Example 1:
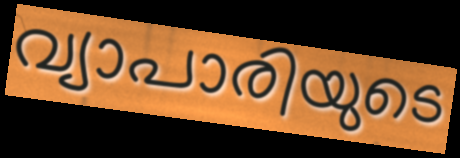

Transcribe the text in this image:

വ്യാപാരിയുടെ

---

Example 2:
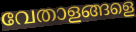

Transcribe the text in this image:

വേതാളങ്ങളെ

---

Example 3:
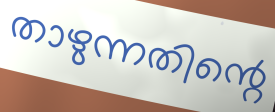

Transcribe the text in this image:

താഴുന്നതിന്റെ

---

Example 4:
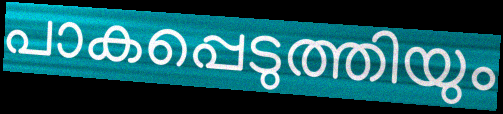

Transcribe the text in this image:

പാകപ്പെടുത്തിയും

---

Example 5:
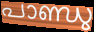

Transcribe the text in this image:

പാണ്ഡു